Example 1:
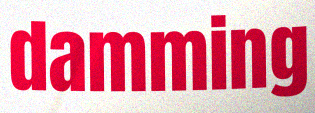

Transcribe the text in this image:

damming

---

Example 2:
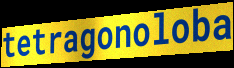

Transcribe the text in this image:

tetragonoloba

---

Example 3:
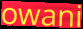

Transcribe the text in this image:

owani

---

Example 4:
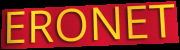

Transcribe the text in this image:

ERONET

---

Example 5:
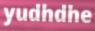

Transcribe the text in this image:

yudhdhe